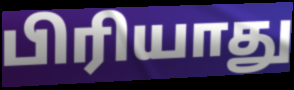
பிரியாது